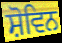
ਸ਼ੋਵਿਨ